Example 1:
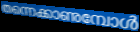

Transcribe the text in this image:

തന്നെക്കാണുമ്പോൾ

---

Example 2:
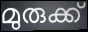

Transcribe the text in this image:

മുരുക്ക്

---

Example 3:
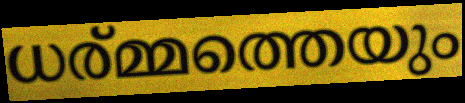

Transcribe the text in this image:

ധര്മ്മത്തെയും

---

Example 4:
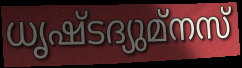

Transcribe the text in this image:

ധൃഷ്ടദ്യുമ്നസ്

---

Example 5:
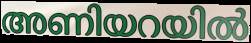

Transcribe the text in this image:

അണിയറയിൽ